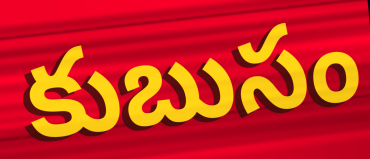
కుబుసం